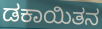
ಡಕಾಯಿತನ